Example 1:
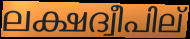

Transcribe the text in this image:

ലക്ഷദ്വീപില്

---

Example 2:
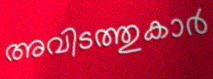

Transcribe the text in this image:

അവിടത്തുകാർ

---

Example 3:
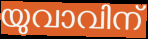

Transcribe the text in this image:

യുവാവിന്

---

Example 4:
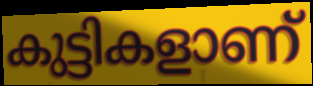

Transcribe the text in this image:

കുട്ടികളാണ്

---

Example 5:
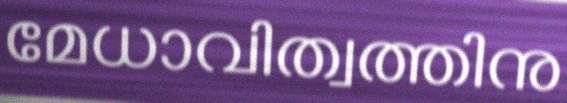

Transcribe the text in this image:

മേധാവിത്വത്തിനു